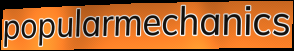
popularmechanics